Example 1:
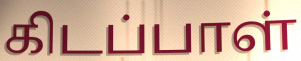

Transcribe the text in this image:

கிடப்பாள்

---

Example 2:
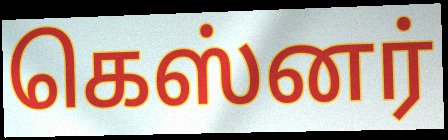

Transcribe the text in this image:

கெஸ்னர்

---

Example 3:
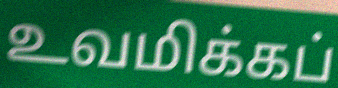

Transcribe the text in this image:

உவமிக்கப்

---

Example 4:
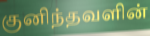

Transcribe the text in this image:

குனிந்தவளின்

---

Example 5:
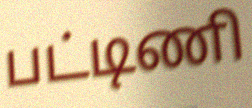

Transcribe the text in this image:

பட்டிணி